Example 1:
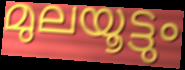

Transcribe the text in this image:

മുലയൂട്ടും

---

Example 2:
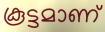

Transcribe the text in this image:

കൂട്ടമാണ്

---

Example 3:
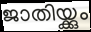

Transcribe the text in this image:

ജാതിയ്ക്കും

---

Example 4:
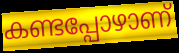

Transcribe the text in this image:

കണ്ടപ്പോഴാണ്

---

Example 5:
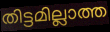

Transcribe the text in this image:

തിട്ടമില്ലാത്ത